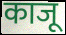
काजू